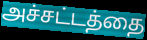
அச்சட்டத்தை